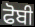
ਫੋਬੀ